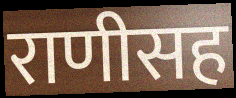
राणीसह